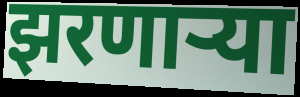
झरणाऱ्या